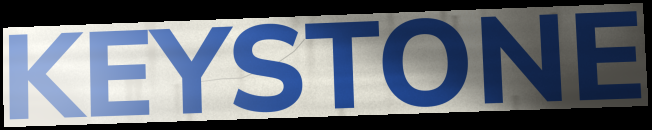
KEYSTONE